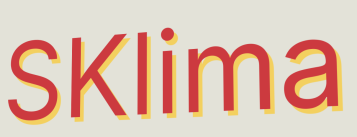
SKlima